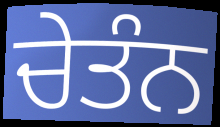
ਚੇਤੰਨ